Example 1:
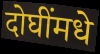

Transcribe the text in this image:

दोघींमधे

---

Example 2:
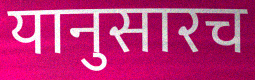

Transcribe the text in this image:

यानुसारच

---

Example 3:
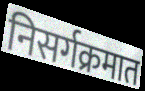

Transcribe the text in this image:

निसर्गक्रमात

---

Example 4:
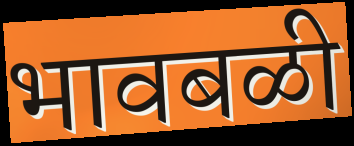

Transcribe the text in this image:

भावबळी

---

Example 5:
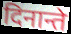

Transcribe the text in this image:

दिनान्ते